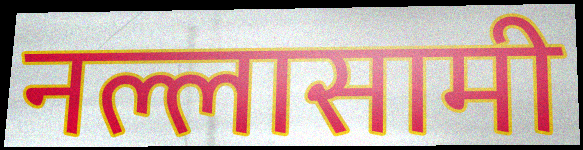
नल्लासामी